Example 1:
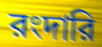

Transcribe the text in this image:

রংদারি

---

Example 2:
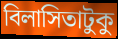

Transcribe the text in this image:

বিলাসিতাটুকু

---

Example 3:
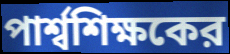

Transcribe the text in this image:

পার্শ্বশিক্ষকের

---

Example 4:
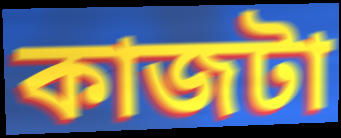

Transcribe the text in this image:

কাজটা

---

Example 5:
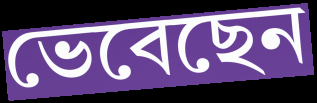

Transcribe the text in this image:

ভেবেছেন